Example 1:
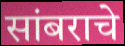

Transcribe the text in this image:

सांबराचे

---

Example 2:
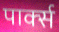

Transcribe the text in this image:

पार्क्‍स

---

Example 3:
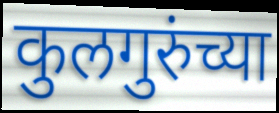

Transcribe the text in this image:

कुलगुरुंच्या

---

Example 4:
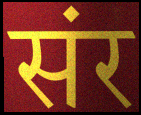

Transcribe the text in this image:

संर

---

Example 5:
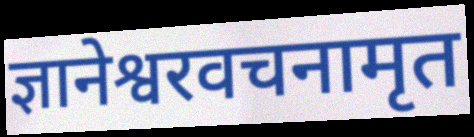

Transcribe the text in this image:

ज्ञानेश्वरवचनामृत